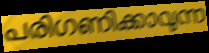
പരിഗണിക്കാവുന്ന